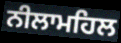
ਨੀਲਾਮਹਿਲ